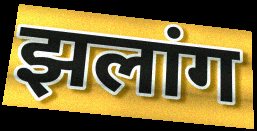
झलांग